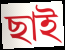
ছাই